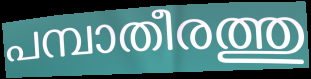
പമ്പാതീരത്തു